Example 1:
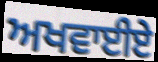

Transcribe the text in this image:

ਅਖਵਾਈਏ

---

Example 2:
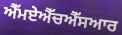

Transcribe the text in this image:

ਐੱਮਏਐੱਚਐੱਸਆਰ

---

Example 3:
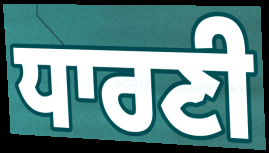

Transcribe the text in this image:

ਧਾਰਣੀ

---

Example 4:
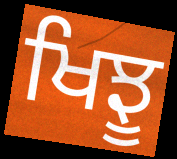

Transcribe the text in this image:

ਖਿਝੂ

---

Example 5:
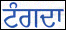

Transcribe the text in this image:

ਟੰਗਦਾ